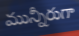
మున్నీరుగా